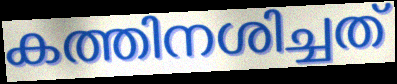
കത്തിനശിച്ചത്